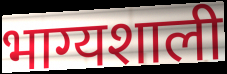
भाग्यशाली